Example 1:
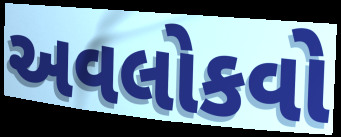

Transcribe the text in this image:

અવલોકવો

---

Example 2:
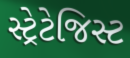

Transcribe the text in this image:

સ્ટ્રેટેજિસ્ટ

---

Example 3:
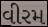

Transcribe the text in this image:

વીરમ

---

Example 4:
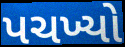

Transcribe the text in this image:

પચખ્યો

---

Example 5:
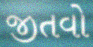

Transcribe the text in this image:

જીતવો